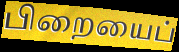
பிறையைப்